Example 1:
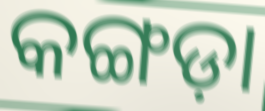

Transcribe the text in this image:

କଙ୍ଗଡ଼ା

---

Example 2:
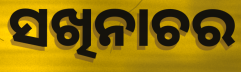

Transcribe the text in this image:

ସଖିନାଚର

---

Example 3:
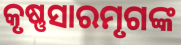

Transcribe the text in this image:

କୃଷ୍ଣସାରମୃଗଙ୍କ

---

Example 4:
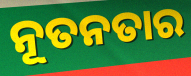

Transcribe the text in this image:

ନୂତନତାର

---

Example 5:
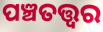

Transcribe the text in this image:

ପଞ୍ଚତତ୍ତ୍ୱର